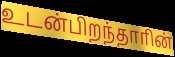
உடன்பிறந்தாரின்